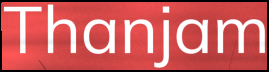
Thanjam